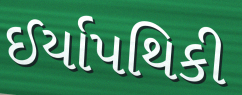
ઈર્યાપથિકી